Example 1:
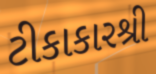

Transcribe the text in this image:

ટીકાકારશ્રી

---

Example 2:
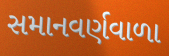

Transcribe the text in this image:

સમાનવર્ણવાળા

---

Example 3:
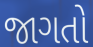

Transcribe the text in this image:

જાગતો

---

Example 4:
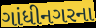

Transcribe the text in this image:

ગાંધીનગરના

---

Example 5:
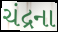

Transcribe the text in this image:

ચંદ્રના